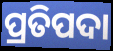
ପ୍ରତିପଦା